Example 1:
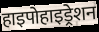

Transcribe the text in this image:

हाइपोहाइड्रेशन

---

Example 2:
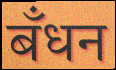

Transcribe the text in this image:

बँधन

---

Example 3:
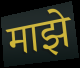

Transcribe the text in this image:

माझे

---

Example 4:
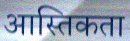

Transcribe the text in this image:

आस्तिकता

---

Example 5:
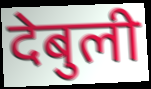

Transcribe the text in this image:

देबुली